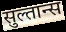
सुल्तान्स